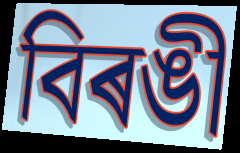
বিৰঙী